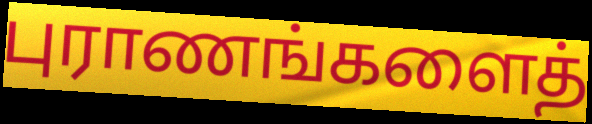
புராணங்களைத்